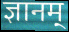
ज्ञानम्